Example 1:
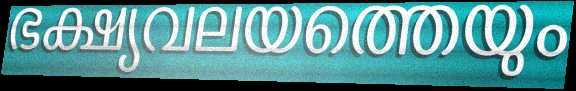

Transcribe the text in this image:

ഭക്ഷ്യവലയത്തെയും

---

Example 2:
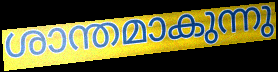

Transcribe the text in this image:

ശാന്തമാകുന്നു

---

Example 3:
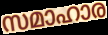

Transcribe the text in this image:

സമാഹാര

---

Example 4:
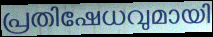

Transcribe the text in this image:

പ്രതിഷേധവുമായി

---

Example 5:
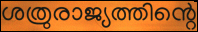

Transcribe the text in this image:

ശത്രുരാജ്യത്തിന്റെ